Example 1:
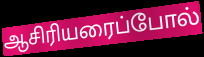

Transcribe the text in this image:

ஆசிரியரைப்போல்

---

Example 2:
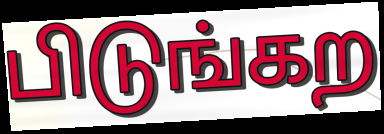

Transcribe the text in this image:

பிடுங்கற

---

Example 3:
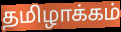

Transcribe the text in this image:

தமிழாக்கம்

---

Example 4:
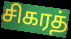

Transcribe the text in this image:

சிகரத்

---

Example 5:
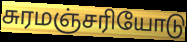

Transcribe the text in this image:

சுரமஞ்சரியோடு